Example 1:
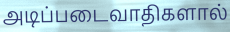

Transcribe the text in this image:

அடிப்படைவாதிகளால்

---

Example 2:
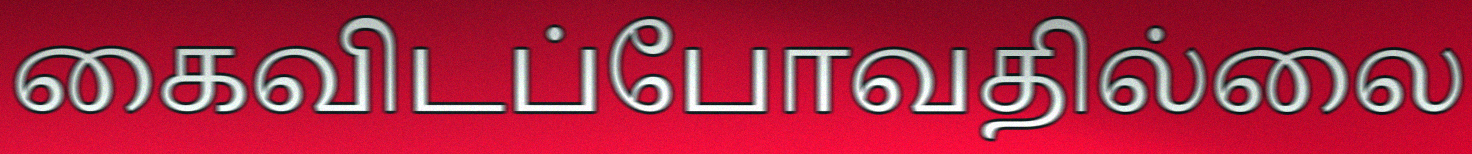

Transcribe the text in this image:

கைவிடப்போவதில்லை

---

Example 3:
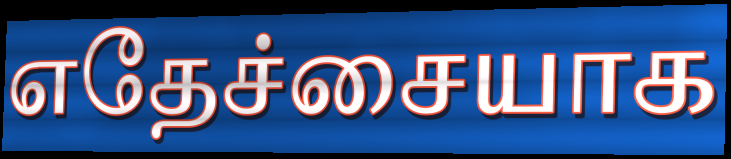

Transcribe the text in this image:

எதேச்சையாக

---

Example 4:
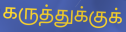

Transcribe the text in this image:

கருத்துக்குக்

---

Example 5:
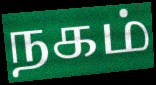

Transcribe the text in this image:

நகம்